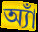
অ্যাঁ